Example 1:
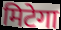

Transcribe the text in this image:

मिटेगा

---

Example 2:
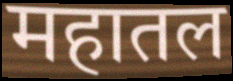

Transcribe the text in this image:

महातल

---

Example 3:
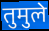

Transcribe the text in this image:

तुमुले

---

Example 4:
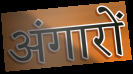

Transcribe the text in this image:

अंगारों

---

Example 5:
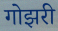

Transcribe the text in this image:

गोझरी